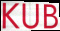
KUB